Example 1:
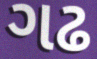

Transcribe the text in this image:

ગઢ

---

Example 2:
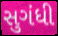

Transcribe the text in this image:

સુગંધી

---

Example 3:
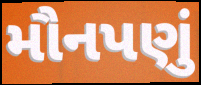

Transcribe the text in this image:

મૌનપણું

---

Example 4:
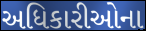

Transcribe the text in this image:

અધિકારીઓના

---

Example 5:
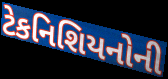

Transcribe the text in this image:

ટેકનિશિયનોની